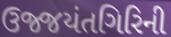
ઉજ્જયંતગિરિની